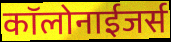
कॉलोनाईजर्स